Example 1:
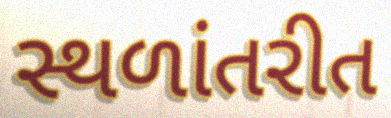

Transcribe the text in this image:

સ્થળાંતરીત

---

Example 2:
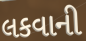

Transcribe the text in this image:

લકવાની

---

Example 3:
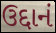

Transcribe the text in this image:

ઉદ્દાનં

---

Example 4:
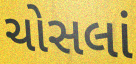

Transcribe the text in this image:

ચોસલાં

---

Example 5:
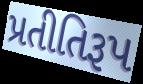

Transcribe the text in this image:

પ્રતીતિરૂપ